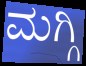
ಮಗ್ಗಿ